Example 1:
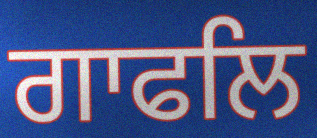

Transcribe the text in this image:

ਗਾਫਲਿ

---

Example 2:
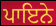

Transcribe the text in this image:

ਪਾਇਨੇ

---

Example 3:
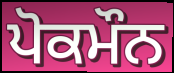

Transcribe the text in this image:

ਪੋਕਮੌਨ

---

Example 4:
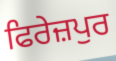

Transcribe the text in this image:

ਫਿਰੇਜ਼ਪੁਰ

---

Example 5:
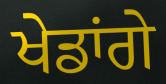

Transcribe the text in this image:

ਖੇਡਾਂਗੇ